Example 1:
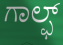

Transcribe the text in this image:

ಗಾಲ್ಫ್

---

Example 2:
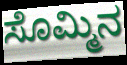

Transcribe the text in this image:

ಸೊಮ್ಮಿನ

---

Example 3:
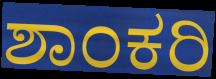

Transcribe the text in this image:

ಶಾಂಕರಿ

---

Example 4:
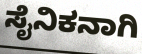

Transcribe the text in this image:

ಸೈನಿಕನಾಗಿ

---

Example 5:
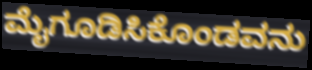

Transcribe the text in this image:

ಮೈಗೂಡಿಸಿಕೊಂಡವನು